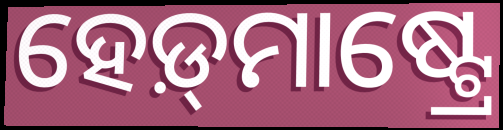
ହେଡ଼୍‌ମାଷ୍ଟ୍ରେ